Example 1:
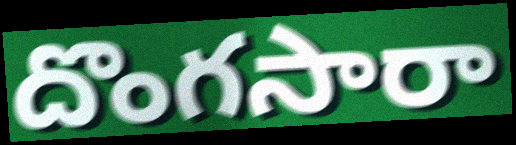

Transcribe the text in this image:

దొంగసారా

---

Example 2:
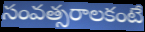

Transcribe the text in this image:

సంవత్సరాలకంటే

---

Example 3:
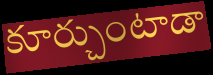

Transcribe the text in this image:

కూర్చుంటాడా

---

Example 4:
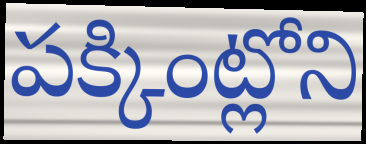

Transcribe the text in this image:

పక్కింట్లోని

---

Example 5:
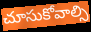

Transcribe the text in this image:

చూసుకోవాల్సి